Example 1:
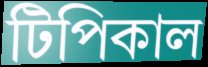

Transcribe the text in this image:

টিপিকাল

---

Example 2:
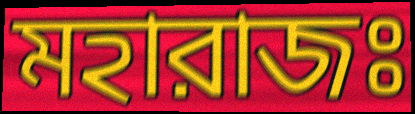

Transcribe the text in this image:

মহারাজঃ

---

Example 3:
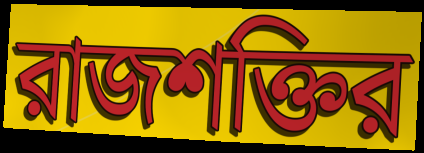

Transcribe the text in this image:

রাজশক্তির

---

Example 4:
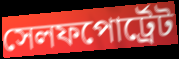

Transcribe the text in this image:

সেলফপোর্ট্রেট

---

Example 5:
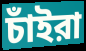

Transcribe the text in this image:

চাঁইরা